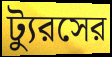
ট্যুরসের